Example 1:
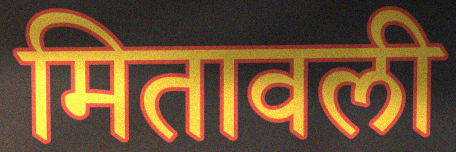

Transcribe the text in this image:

मितावली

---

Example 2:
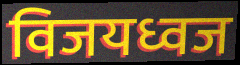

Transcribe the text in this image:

विजयध्वज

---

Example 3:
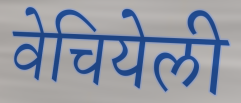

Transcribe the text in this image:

वेचियेली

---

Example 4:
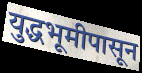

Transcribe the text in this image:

युद्धभूमीपासून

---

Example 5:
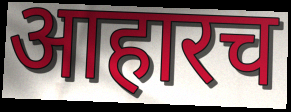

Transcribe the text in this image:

आहारच